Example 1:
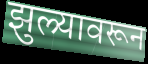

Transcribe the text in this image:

झुल्यावरून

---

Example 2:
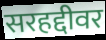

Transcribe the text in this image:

सरहद्दीवर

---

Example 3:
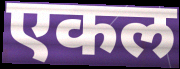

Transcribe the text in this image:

एकल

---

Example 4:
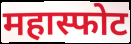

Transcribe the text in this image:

महास्फोट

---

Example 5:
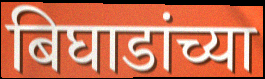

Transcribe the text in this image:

बिघाडांच्या